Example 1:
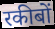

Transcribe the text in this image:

रकीबों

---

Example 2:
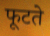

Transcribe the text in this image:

फूटते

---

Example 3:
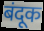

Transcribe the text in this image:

बंदूक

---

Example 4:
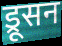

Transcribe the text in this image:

ड्रूसन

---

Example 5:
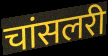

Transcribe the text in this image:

चांसलरी